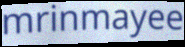
mrinmayee